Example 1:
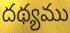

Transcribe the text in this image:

దథ్యము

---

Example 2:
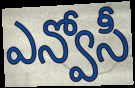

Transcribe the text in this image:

ఎన్వోసీ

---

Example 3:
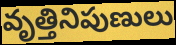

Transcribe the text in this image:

వృత్తినిపుణులు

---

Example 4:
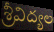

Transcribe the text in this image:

శ్రీవిద్యల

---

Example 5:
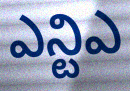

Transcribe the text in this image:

ఎన్టిఎ